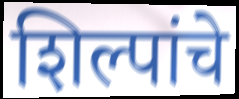
शिल्पांचे